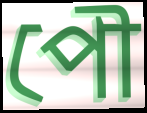
পৌ